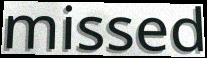
missed